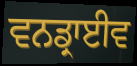
ਵਨਡ੍ਰਾਈਵ